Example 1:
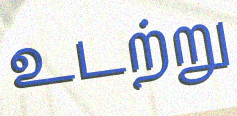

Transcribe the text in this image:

உடற்று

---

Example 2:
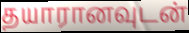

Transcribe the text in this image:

தயாரானவுடன்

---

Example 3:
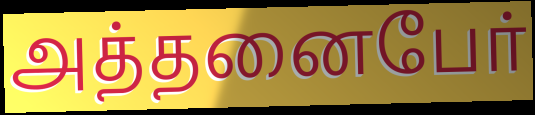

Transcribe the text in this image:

அத்தனைபேர்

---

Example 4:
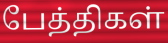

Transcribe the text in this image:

பேத்திகள்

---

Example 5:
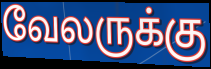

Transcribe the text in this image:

வேலருக்கு